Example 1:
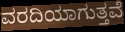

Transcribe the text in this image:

ವರದಿಯಾಗುತ್ತವೆ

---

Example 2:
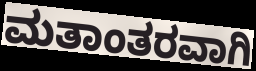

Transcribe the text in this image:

ಮತಾಂತರವಾಗಿ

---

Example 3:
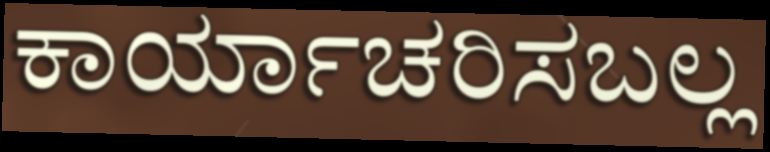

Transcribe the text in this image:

ಕಾರ್ಯಾಚರಿಸಬಲ್ಲ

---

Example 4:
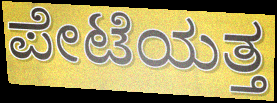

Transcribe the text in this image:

ಪೇಟೆಯತ್ತ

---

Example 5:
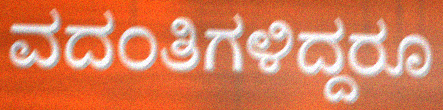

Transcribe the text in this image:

ವದಂತಿಗಳಿದ್ದರೂ